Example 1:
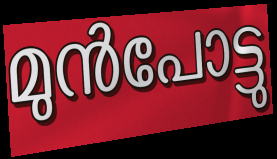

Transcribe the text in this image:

മുൻപോട്ടു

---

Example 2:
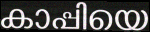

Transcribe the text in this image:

കാപ്പിയെ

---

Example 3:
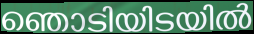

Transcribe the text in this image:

ഞൊടിയിടയിൽ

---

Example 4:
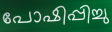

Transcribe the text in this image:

പോഷിപ്പിച്ചു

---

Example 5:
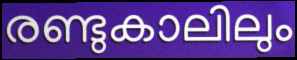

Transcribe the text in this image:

രണ്ടുകാലിലും